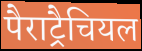
पैराट्रैचियल